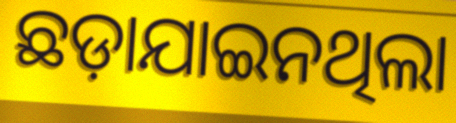
ଛଡ଼ାଯାଇନଥିଲା